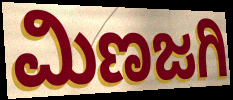
ಮಿಣಜಗಿ